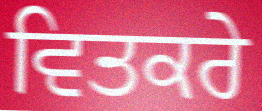
ਵਿਤਕਰੇ